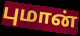
புமான்